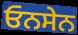
ਓਨਸੇਨ